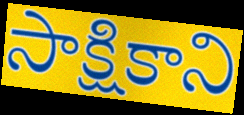
సాక్షికాని